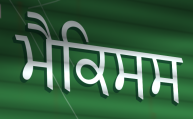
ਮੈਕਿਸਸ